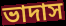
ভাদাস